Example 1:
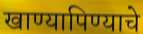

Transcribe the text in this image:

खाण्यापिण्याचे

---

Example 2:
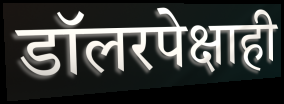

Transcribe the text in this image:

डॉलरपेक्षाही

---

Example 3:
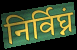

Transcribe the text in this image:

निर्विघ्नं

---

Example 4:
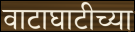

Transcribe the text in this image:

वाटाघाटीच्या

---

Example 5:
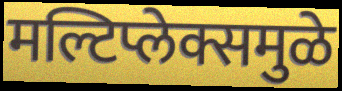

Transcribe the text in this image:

मल्टिप्लेक्समुळे